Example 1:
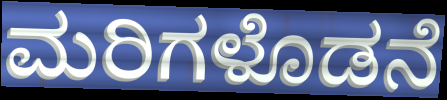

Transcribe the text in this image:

ಮರಿಗಳೊಡನೆ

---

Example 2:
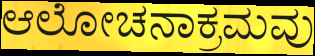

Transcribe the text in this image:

ಆಲೋಚನಾಕ್ರಮವು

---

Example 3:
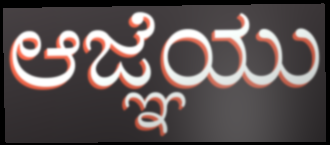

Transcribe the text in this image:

ಆಜ್ಞೆಯು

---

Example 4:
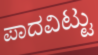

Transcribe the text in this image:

ಪಾದವಿಟ್ಟು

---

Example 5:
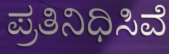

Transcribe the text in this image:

ಪ್ರತಿನಿಧಿಸಿವೆ